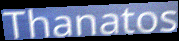
Thanatos